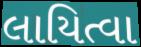
લાયિત્વા